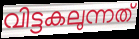
വിട്ടകലുന്നത്